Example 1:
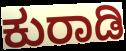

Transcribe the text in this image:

ಕುರಾಡಿ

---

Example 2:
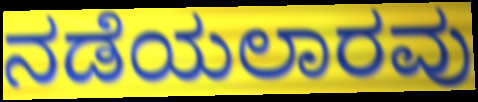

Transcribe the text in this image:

ನಡೆಯಲಾರವು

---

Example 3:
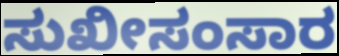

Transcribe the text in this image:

ಸುಖೀಸಂಸಾರ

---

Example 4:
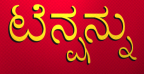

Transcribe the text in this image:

ಟೆನ್ಷನ್ನು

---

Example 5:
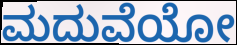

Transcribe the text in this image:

ಮದುವೆಯೋ